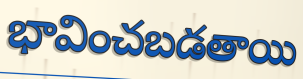
భావించబడతాయి